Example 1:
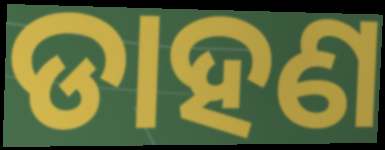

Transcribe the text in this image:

ଡାହଣ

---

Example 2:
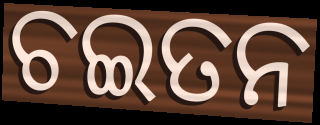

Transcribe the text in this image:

ଚଇତନ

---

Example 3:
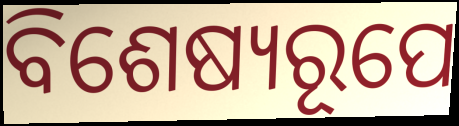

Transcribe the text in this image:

ବିଶେଷ୍ୟରୂପେ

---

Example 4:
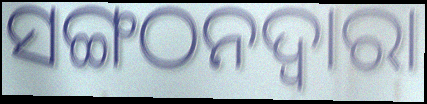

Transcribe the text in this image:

ସଙ୍ଗଠନଦ୍ୱାରା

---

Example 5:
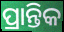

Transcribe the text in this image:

ପ୍ରାନ୍ତିକ